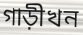
গাড়ীখন